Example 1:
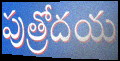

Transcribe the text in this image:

పుత్రోదయ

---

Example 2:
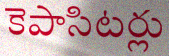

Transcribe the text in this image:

కెపాసిటర్లు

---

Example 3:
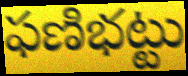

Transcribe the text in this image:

ఫణిభట్టు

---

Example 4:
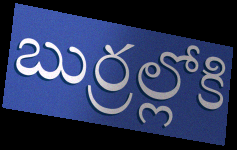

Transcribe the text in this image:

బుర్రల్లోకి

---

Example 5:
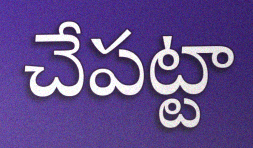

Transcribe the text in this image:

చేపట్టా